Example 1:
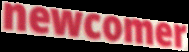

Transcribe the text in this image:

newcomer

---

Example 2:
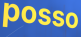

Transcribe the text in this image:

posso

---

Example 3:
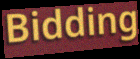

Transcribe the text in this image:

Bidding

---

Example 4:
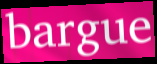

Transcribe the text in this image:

bargue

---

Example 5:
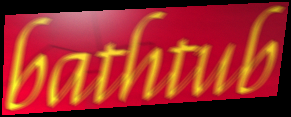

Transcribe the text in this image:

bathtub